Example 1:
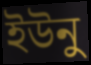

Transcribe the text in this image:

ইউনু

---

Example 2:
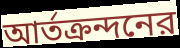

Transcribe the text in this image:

আর্তক্রন্দনের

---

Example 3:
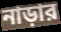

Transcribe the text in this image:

নাড়ার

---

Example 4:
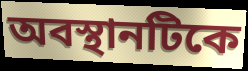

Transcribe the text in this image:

অবস্থানটিকে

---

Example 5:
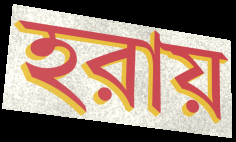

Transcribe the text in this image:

হরায়